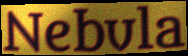
Nebula